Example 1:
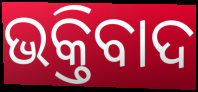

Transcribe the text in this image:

ଭକ୍ତିବାଦ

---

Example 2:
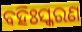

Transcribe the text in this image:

ବହିଃସ୍କରଣ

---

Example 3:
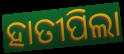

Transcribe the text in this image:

ହାତୀପିଲା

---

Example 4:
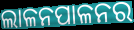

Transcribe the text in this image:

ଲାଳନପାଳନର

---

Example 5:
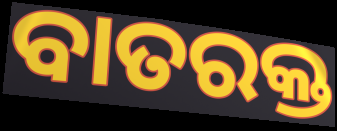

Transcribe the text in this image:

ବାତରକ୍ତ